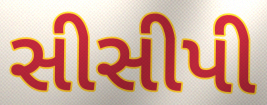
સીસીપી